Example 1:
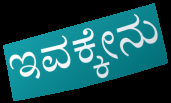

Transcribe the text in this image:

ಇವಕ್ಕೇನು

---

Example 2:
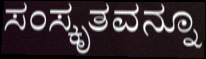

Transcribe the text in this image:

ಸಂಸ್ಕೃತವನ್ನೂ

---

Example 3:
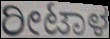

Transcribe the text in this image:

ರೀಟಾಳ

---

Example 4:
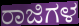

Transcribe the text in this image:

ರಾಜಿಗಳ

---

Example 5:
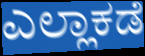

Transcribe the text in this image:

ಎಲ್ಲಾಕಡೆ